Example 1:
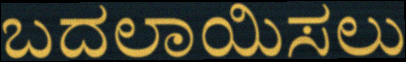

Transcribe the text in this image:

ಬದಲಾಯಿಸಲು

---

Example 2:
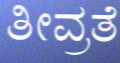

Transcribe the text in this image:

ತೀವ್ರತೆ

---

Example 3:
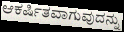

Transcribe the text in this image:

ಆಕರ್ಷಿತವಾಗುವುದನ್ನು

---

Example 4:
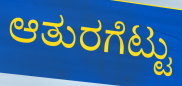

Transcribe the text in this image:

ಆತುರಗೆಟ್ಟು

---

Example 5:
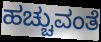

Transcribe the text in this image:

ಹಚ್ಚುವಂತೆ